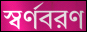
স্বর্ণবরণ